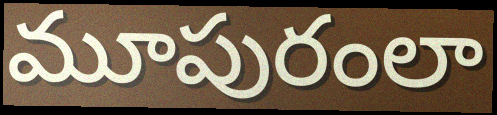
మూపురంలా